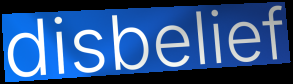
disbelief